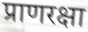
प्राणरक्षा